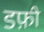
डफ़ी